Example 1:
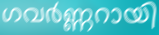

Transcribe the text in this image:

ഗവർണ്ണറായി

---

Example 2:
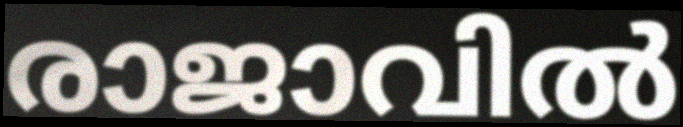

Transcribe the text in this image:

രാജാവിൽ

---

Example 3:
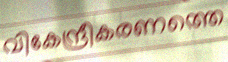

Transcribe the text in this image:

വികേന്ദ്രീകരണത്തെ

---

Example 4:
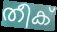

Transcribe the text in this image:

തീക്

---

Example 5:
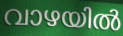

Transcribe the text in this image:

വാഴയിൽ